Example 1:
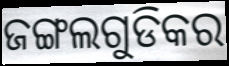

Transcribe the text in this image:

ଜଙ୍ଗଲଗୁଡିକର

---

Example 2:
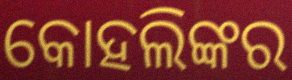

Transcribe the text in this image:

କୋହଲିଙ୍କର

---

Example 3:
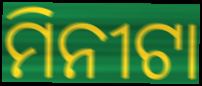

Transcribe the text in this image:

ମିନୀଟା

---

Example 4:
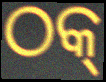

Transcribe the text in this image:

ଠକ୍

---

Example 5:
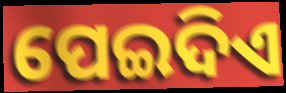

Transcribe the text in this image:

ପେଇଦିଏ